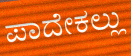
ಪಾದೇಕಲ್ಲು